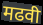
मढवी